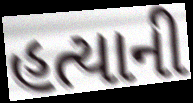
હત્યાની